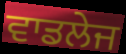
ਵਾਡਲੇਜ